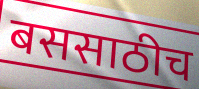
बससाठीच